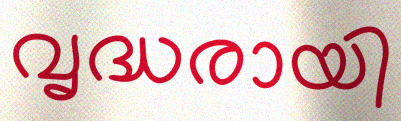
വൃദ്ധരായി